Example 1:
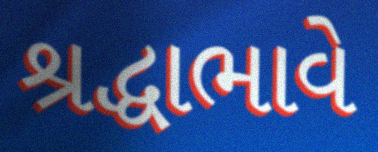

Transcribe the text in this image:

શ્રદ્ધાભાવે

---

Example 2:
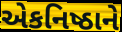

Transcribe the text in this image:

એકનિષ્ઠાને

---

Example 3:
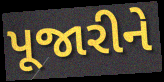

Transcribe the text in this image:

પૂજારીને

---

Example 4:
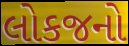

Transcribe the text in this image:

લોકજનો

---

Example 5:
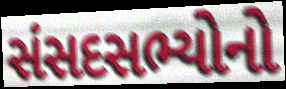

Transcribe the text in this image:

સંસદસભ્યોનો